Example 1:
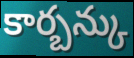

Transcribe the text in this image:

కార్బన్కు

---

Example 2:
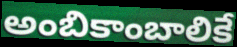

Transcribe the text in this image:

అంబికాంబాలికే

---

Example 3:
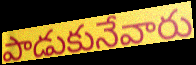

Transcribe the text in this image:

పాడుకునేవారు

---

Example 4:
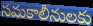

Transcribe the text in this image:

సమకాలీనులకు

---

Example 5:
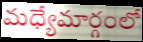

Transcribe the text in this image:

మధ్యేమార్గంలో